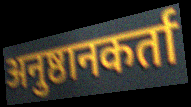
अनुष्ठानकर्ता